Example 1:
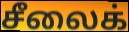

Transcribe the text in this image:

சீலைக்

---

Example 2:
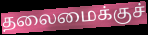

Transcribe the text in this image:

தலைமைக்குச்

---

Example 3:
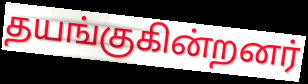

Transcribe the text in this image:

தயங்குகின்றனர்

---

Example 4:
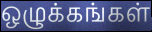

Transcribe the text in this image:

ஒழுக்கங்கள்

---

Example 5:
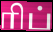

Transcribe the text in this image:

ரிப்